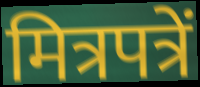
मित्रपत्रें